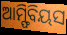
ଆମ୍ଫିବିୟସ